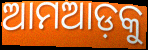
ଆମଆଡ଼କୁ